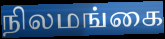
நிலமங்கை